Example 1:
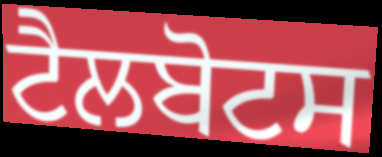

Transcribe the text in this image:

ਟੈਲਬੋਟਸ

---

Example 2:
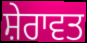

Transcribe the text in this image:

ਸ਼ੇਰਾਵਤ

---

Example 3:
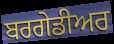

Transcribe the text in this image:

ਬਰਗੇਡੀਅਰ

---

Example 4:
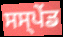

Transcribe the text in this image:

ਸਸ੍ਪੇੰਡ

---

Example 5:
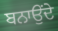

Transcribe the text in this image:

ਬਨਾਉਂਦੇ